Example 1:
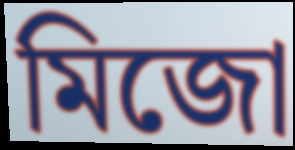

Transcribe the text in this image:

মিজো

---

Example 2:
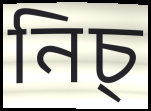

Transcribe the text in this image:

নিচ্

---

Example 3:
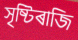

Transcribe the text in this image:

সৃষ্টিৰাজি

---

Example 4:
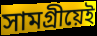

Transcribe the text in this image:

সামগ্ৰীয়েই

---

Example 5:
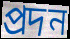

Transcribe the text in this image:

প্ৰদন